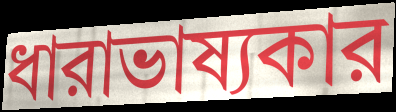
ধারাভাষ্যকার